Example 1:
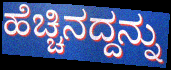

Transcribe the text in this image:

ಹೆಚ್ಚಿನದ್ದನ್ನು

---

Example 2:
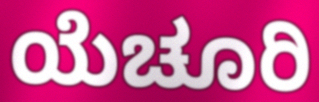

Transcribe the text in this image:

ಯೆಚೂರಿ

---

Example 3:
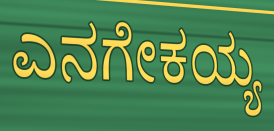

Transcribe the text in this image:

ಎನಗೇಕಯ್ಯ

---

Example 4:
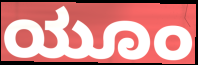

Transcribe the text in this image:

ಯೂಂ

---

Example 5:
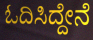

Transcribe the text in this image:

ಓದಿಸಿದ್ದೇನೆ